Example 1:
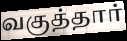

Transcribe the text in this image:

வகுத்தார்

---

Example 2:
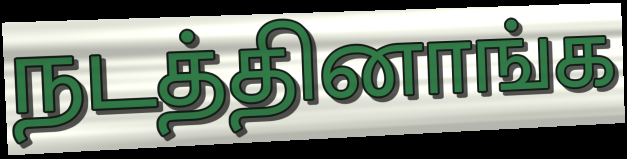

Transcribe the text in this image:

நடத்தினாங்க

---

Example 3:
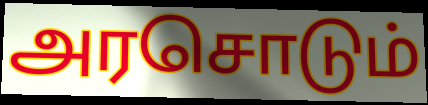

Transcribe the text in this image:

அரசொடும்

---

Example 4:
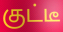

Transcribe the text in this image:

குட்டீ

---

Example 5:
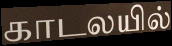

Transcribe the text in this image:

காடலயில்